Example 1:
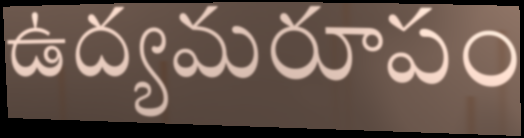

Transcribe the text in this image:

ఉద్యమరూపం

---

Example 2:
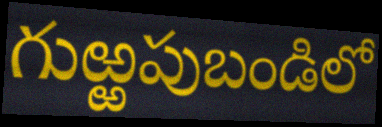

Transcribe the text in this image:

గుఱ్ఱపుబండిలో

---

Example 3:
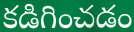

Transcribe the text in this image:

కడిగించడం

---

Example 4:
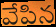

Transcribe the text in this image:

వేపిన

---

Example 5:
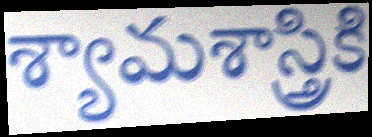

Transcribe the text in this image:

శ్యామశాస్త్రికి